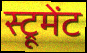
स्ट्रूमेंट